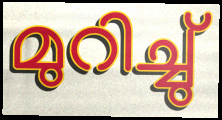
മുറിച്ചു്